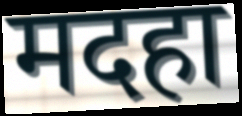
मदहा